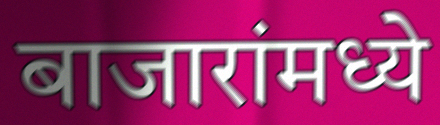
बाजारांमध्ये